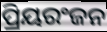
ପ୍ରିୟରଂଜନ